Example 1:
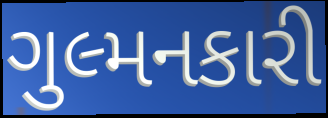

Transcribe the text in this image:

ગુલ્મનકારી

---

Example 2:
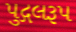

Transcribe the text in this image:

પુદ્ગલરૂપ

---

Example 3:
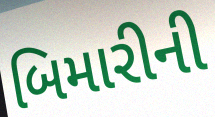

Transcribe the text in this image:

બિમારીની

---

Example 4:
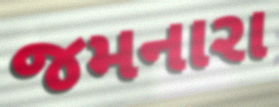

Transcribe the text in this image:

જમનારા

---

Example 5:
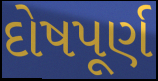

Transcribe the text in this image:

દોષપૂર્ણ